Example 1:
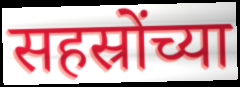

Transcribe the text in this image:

सहस्रोंच्या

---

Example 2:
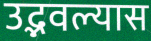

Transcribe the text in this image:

उद्भवल्यास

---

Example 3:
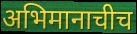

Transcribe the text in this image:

अभिमानाचीच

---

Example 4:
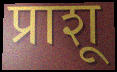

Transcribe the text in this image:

प्राशू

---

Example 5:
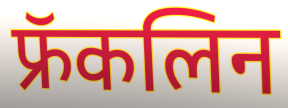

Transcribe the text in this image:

फ्रॅकलिन